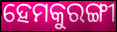
ହେମକୁରଙ୍ଗୀ